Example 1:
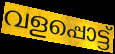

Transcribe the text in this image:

വളപ്പൊട്ട്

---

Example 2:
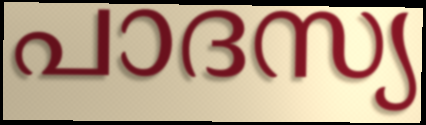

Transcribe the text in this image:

പാദസ്യ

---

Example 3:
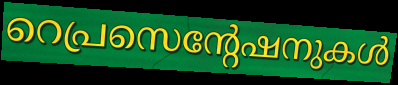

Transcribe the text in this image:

റെപ്രസെന്റേഷനുകൾ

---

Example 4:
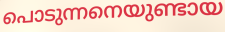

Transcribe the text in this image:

പൊടുന്നനെയുണ്ടായ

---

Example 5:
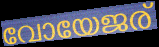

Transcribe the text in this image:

വോയേജര്